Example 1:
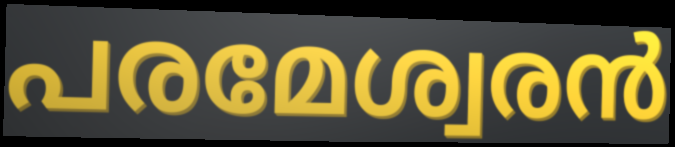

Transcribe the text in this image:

പരമേശ്വരൻ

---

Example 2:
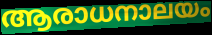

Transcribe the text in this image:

ആരാധനാലയം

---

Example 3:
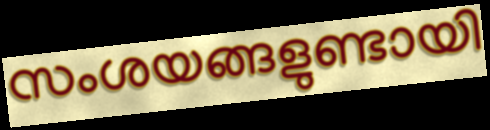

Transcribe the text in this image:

സംശയങ്ങളുണ്ടായി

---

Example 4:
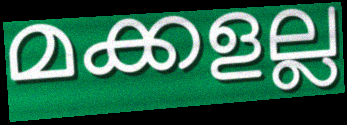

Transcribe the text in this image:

മക്കളല്ല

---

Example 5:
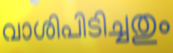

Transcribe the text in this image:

വാശിപിടിച്ചതും